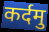
कर्दमु